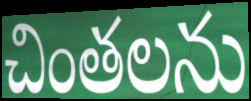
చింతలను